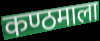
कण्ठमाला